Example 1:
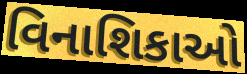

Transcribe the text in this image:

વિનાશિકાઓ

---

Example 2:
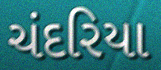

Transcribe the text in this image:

ચંદરિયા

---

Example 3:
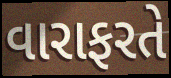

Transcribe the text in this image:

વારાફરતે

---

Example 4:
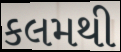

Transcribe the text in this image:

કલમથી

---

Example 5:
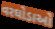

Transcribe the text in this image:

વરઘોડાઓ